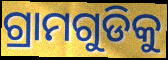
ଗ୍ରାମଗୁଡିକୁ